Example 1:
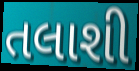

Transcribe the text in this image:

તલાશી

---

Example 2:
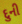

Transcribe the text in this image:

દુની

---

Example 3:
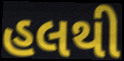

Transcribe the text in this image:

હલથી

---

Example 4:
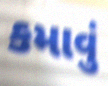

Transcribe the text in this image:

કમાવું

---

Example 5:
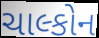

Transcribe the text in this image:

ચાલ્કોન